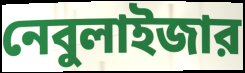
নেবুলাইজার